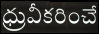
ధ్రువీకరించే